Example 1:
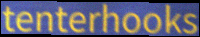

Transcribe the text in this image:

tenterhooks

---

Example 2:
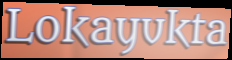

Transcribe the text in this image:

Lokayukta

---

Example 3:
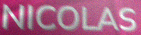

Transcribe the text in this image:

NICOLAS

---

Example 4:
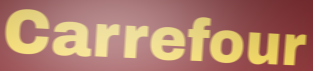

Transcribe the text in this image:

Carrefour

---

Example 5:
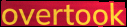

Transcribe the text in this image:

overtook